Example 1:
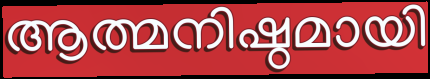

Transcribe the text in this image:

ആത്മനിഷ്ഠമായി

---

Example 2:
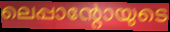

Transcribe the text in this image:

ലെപ്പാന്റോയുടെ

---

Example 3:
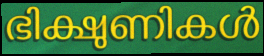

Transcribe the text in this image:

ഭിക്ഷുണികൾ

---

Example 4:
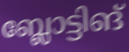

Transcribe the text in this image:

ബ്ലോട്ടിങ്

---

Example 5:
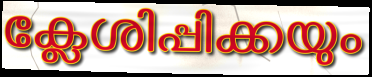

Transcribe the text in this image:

ക്ലേശിപ്പിക്കയും